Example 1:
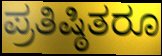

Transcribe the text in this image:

ಪ್ರತಿಷ್ಠಿತರೂ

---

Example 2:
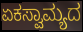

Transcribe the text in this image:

ಏಕಸ್ವಾಮ್ಯದ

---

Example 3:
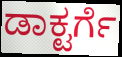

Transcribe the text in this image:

ಡಾಕ್ಟರ್ಗೆ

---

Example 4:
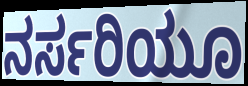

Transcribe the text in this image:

ನರ್ಸರಿಯೂ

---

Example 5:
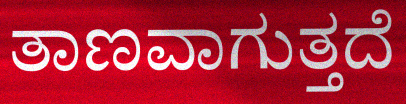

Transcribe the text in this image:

ತಾಣವಾಗುತ್ತದೆ